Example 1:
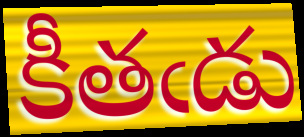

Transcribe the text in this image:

కీతఁడు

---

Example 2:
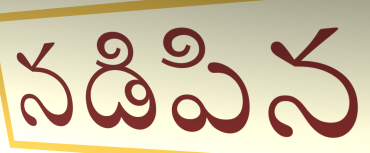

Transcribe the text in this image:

నడిపిన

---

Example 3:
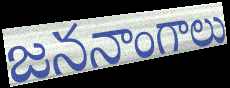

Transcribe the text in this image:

జననాంగాలు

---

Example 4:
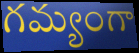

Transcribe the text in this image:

గమ్యంగా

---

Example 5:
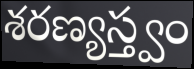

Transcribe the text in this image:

శరణ్యస్త్వం